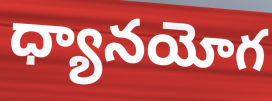
ధ్యానయోగ